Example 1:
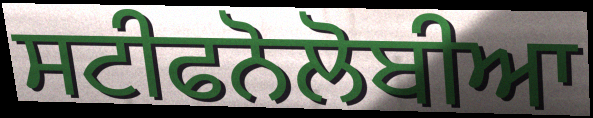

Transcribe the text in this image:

ਸਟੀਫਨੋਲੋਬੀਆ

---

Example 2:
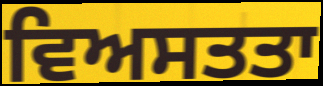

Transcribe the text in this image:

ਵਿਅਸਤਤਾ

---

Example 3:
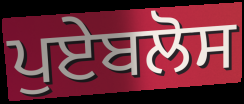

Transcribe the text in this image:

ਪੁਏਬਲੋਸ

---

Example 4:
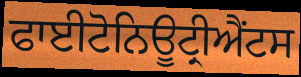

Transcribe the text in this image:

ਫਾਈਟੋਨਿਊਟ੍ਰੀਐਂਟਸ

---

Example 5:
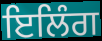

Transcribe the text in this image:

ਇਲਿੰਗ